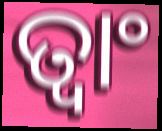
ତ୍ଵାଂ